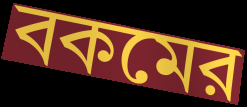
বকমের